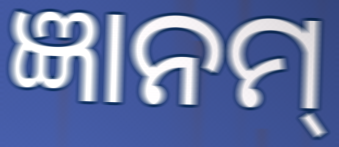
ଜ୍ଞାନମ୍